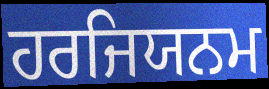
ਹਰਜਿਯਨਮ